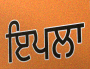
ਇਪਲਾ